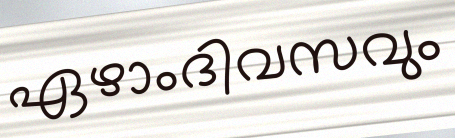
ഏഴാംദിവസവും